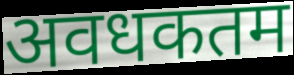
अवधकतम